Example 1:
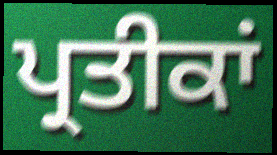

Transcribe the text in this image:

ਪ੍ਰਤੀਕਾਂ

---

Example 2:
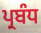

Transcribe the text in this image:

ਪ੍ਰਬੰਧ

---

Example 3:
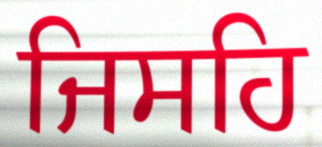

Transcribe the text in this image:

ਜਿਸਹਿ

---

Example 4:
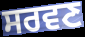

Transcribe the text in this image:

ਸਰਵਣ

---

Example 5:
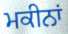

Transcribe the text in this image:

ਮਕੀਨਾਂ